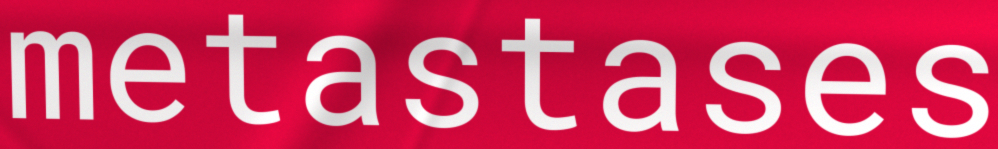
metastases